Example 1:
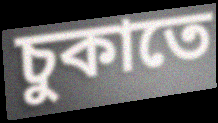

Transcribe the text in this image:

চুকাতে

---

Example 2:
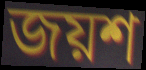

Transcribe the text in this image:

জয়শ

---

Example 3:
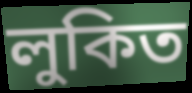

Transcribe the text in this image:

লুকিত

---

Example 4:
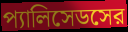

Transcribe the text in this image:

প্যালিসেডসের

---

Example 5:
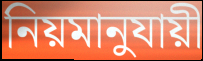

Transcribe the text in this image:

নিয়মানুযায়ী